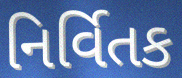
નિર્વિતક